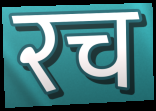
रच